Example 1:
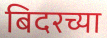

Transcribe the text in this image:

बिदरच्या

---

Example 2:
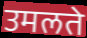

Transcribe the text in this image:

उमलते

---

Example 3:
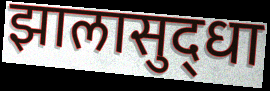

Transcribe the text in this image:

झालासुद्धा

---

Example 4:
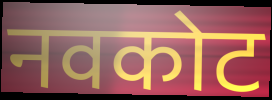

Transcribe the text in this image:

नवकोट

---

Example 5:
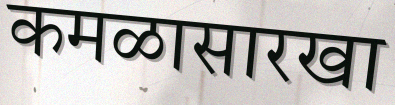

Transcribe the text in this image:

कमळासारखा